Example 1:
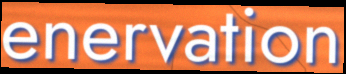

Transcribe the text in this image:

enervation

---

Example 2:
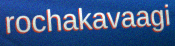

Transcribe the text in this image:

rochakavaagi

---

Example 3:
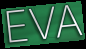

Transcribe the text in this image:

EVA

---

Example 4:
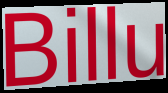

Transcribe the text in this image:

Billu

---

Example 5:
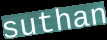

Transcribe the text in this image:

suthan